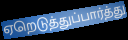
ஏறெடுத்துப்பார்த்து